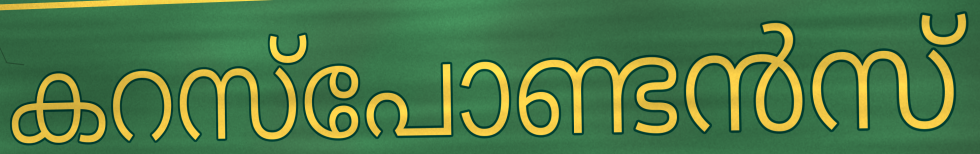
കറസ്പോണ്ടൻസ്